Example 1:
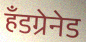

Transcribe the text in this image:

हॅंडग्रेनेड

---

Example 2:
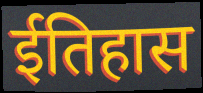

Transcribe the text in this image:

ईतिहास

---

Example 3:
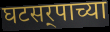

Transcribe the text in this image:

घटसर्पाच्या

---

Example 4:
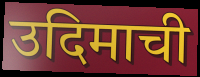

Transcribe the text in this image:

उदिमाची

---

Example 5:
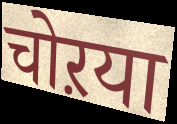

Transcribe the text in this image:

चोऱया